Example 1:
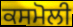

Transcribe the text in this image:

ਕਸਮੋਲੀ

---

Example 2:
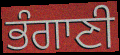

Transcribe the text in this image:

ਭੰਗਾਣੀ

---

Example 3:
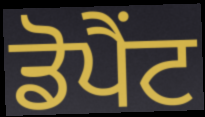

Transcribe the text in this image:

ਡੋਪੈਂਟ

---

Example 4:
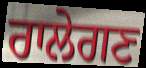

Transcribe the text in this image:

ਰਾਲੇਗਣ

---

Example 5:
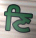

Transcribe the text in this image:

ਣਿ